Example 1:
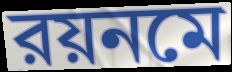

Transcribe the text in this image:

রয়নমে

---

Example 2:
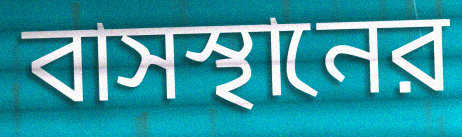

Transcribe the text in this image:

বাসস্থানের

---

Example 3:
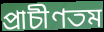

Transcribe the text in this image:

প্রাচীণতম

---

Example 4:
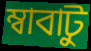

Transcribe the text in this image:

ম্বাবাটু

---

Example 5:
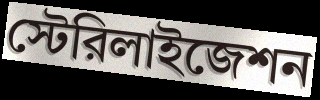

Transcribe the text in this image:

স্টেরিলাইজেশন